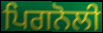
ਪਿਗਨੋਲੀ